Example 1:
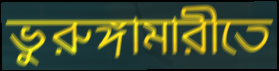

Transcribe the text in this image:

ভুরুঙ্গামারীতে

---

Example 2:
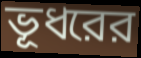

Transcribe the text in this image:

ভূধরের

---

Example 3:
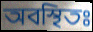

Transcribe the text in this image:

অবস্থিতঃ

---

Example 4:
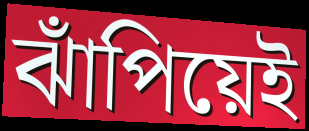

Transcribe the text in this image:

ঝাঁপিয়েই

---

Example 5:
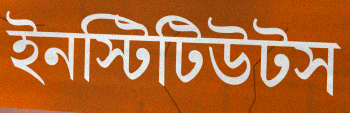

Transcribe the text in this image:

ইনস্টিটিউটস